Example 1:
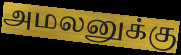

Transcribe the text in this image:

அமலனுக்கு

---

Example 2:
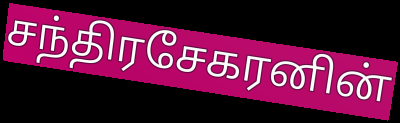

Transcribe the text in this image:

சந்திரசேகரனின்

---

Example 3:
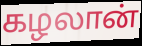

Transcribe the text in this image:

கழலான்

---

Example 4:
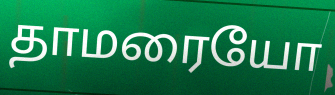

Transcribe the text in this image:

தாமரையோ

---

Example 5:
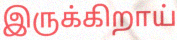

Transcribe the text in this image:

இருக்கிறாய்